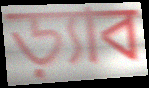
ড়্যাব